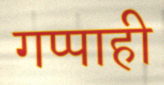
गप्पाही